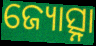
ଜ୍ୟୋତ୍ସ୍ନା